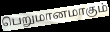
பெறுமானமாகும்